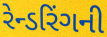
રેન્ડરિંગની